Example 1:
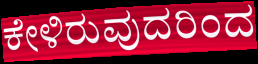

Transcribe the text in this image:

ಕೇಳಿರುವುದರಿಂದ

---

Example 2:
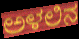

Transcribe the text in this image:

ಅಳಲಿನ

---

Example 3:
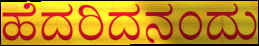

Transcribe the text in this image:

ಹೆದರಿದನಂದು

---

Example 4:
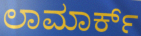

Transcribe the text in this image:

ಲಾಮಾರ್ಕ್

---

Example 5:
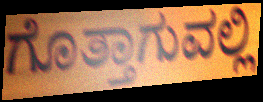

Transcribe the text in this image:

ಗೊತ್ತಾಗುವಲ್ಲಿ